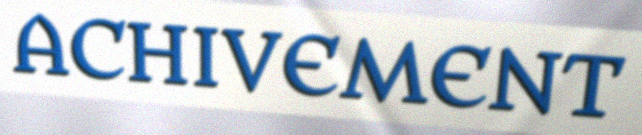
ACHIVEMENT